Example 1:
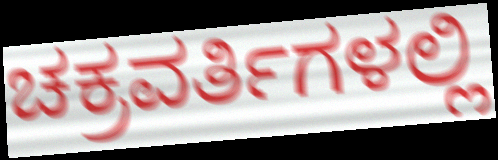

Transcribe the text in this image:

ಚಕ್ರವರ್ತಿಗಳಲ್ಲಿ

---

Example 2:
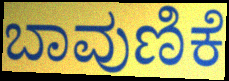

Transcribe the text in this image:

ಬಾವುಣಿಕೆ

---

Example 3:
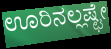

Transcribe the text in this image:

ಊರಿನಲ್ಲಷ್ಟೇ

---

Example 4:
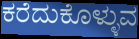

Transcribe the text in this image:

ಕರೆದುಕೊಳ್ಳುವ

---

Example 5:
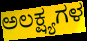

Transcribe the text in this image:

ಅಲಕ್ಷ್ಯಗಳ